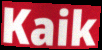
Kaik